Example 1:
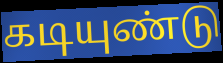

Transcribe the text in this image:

கடியுண்டு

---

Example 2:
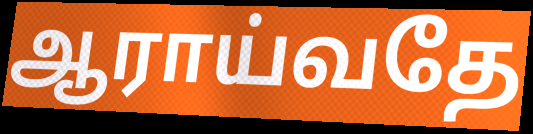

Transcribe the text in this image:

ஆராய்வதே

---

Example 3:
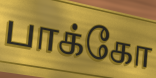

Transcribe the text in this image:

பாக்கோ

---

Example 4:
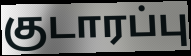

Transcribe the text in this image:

குடாரப்பு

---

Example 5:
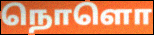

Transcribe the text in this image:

நொளொ